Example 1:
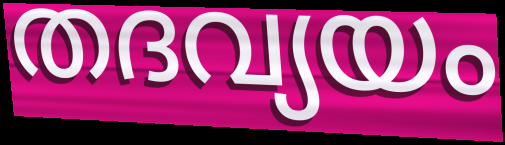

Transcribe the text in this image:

തദവ്യയം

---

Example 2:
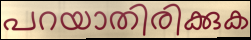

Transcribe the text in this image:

പറയാതിരിക്കുക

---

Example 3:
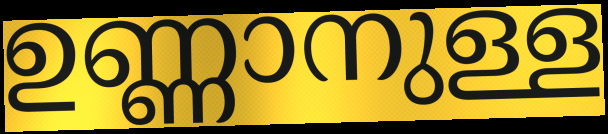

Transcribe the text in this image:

ഉണ്ണാനുള്ള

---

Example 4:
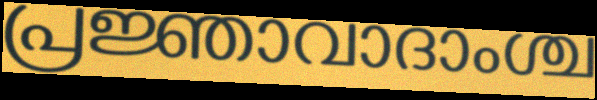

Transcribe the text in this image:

പ്രജ്ഞാവാദാംശ്ച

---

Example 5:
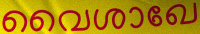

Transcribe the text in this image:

വൈശാഖേ